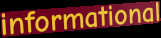
informational